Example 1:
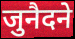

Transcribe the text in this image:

जुनैदने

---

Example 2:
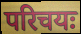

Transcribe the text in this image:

परिचयः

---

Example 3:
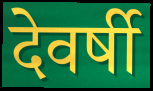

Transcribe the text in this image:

देवर्षी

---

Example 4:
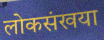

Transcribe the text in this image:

लोकसंखया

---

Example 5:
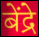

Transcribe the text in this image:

बेंद्रे